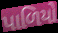
પાળિયો